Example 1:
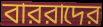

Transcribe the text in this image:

বাররাদের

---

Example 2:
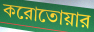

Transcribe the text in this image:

করোতোয়ার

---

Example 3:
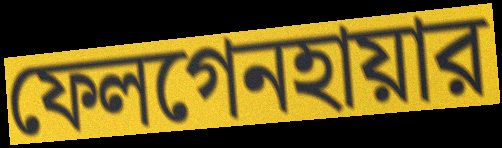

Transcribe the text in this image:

ফেলগেনহায়ার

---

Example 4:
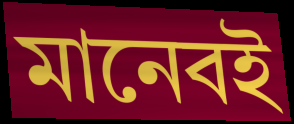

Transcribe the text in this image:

মানেবই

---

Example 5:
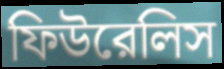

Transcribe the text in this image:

ফিউরেলিস